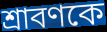
শ্রাবণকে